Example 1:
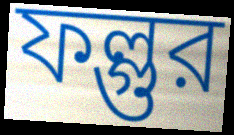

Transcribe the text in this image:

ফল্গুর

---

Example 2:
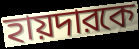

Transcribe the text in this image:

হায়দারকে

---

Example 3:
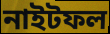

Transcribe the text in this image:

নাইটফল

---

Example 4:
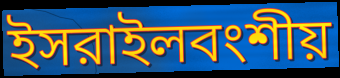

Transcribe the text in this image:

ইসরাইলবংশীয়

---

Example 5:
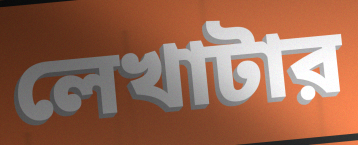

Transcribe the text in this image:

লেখাটার